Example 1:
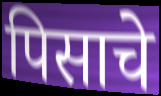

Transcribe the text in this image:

पिसाचे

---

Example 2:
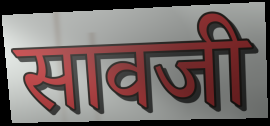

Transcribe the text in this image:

सावजी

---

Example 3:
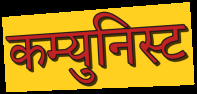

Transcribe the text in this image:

कम्युनिस्ट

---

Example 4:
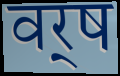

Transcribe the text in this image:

वर्ष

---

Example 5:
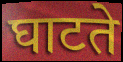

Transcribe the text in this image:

घाटते